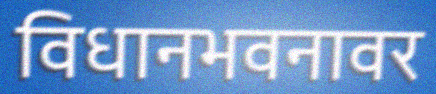
विधानभवनावर